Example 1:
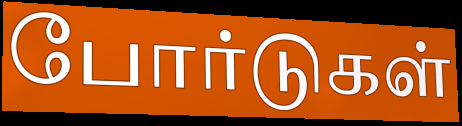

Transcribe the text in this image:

போர்டுகள்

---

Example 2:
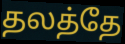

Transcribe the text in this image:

தலத்தே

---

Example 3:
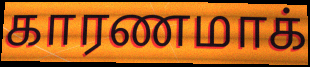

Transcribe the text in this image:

காரணமாக்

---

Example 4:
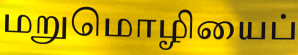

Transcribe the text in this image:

மறுமொழியைப்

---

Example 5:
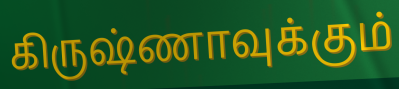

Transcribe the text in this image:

கிருஷ்ணாவுக்கும்